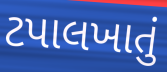
ટપાલખાતું